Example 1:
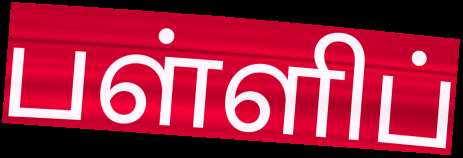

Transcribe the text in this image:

பள்ளிப்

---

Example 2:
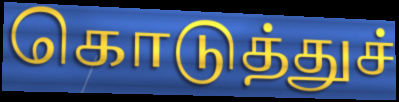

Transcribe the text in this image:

கொடுத்துச்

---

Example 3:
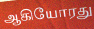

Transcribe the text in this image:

ஆகியோரது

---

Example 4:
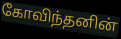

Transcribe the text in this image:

கோவிந்தனின்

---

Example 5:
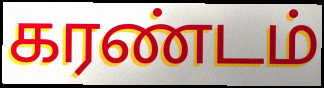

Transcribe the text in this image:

கரண்டம்